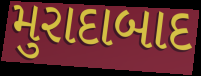
મુરાદાબાદ